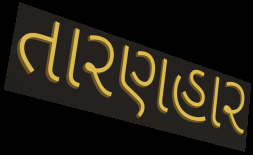
તારણહાર